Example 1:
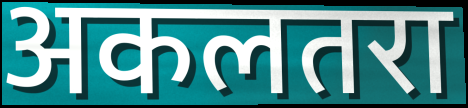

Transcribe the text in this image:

अकलतरा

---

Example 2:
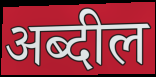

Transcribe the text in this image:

अब्दील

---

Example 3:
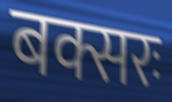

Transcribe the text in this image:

बक्सरः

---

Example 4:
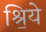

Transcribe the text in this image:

श्रि॒ये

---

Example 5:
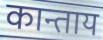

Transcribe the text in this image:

कान्ताय